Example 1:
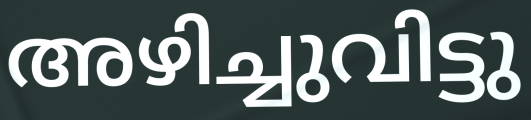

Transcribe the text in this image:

അഴിച്ചുവിട്ടു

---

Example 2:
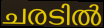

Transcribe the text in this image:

ചരടിൽ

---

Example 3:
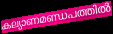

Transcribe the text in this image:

കല്യാണമണ്ഡപത്തിൽ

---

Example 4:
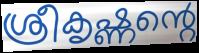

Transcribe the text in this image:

ശ്രീകൃഷ്ണന്റെ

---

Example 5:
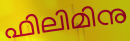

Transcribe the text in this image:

ഫിലിമിനു